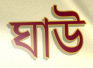
ঘাউ